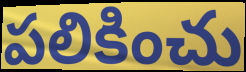
పలికించు